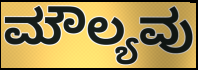
ಮೌಲ್ಯವು